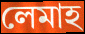
লেমাহ